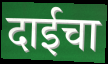
दाईचा